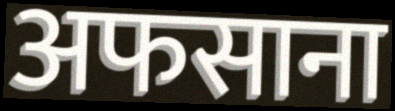
अफसाना